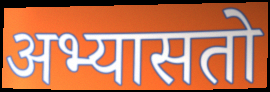
अभ्यासतो